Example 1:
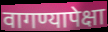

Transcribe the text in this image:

वागण्यापेक्षा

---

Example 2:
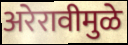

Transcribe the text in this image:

अरेरावीमुळे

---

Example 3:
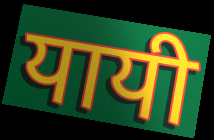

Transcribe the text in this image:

यायी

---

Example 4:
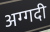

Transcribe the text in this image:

अग्गदी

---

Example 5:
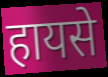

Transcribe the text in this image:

हायसे